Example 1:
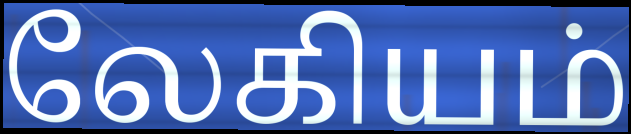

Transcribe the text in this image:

லேகியம்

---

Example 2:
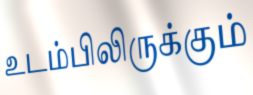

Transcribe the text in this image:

உடம்பிலிருக்கும்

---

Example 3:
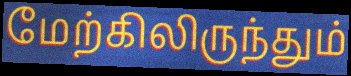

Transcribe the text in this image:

மேற்கிலிருந்தும்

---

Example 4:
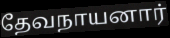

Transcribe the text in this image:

தேவநாயனார்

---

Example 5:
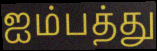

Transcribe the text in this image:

ஐம்பத்து